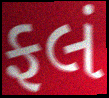
ફલં